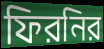
ফিরনির